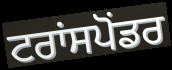
ਟਰਾਂਸਪੋਂਡਰ